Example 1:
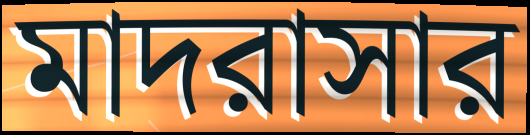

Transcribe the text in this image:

মাদরাসার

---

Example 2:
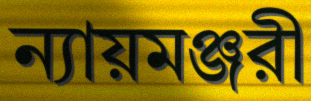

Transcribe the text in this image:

ন্যায়মঞ্জরী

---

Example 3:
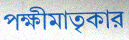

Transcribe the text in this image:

পক্ষীমাতৃকার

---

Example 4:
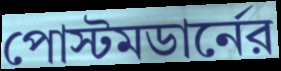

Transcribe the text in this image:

পোস্টমডার্নের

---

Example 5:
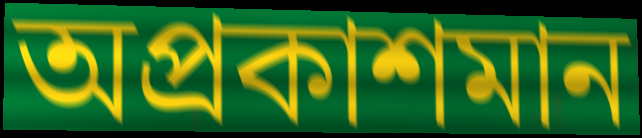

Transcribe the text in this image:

অপ্রকাশমান